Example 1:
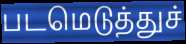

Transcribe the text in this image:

படமெடுத்துச்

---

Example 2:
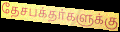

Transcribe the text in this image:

தேசபக்தர்களுக்கு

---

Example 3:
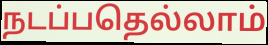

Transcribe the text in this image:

நடப்பதெல்லாம்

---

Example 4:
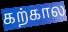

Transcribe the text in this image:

கற்கால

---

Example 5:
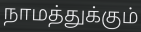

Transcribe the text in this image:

நாமத்துக்கும்